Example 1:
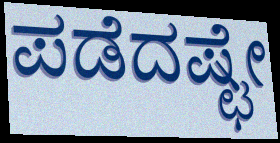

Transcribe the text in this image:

ಪಡೆದಷ್ಟೇ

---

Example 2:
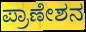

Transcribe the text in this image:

ಪ್ರಾಣೇಶನ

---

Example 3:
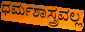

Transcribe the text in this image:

ಧರ್ಮಶಾಸ್ತ್ರವಲ್ಲ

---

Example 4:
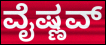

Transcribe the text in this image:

ವೈಷ್ಣವ್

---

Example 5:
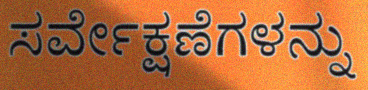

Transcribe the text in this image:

ಸರ್ವೇಕ್ಷಣೆಗಳನ್ನು